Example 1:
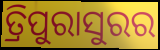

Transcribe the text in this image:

ତ୍ରିପୁରାସୁରର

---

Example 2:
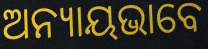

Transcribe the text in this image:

ଅନ୍ୟାୟଭାବେ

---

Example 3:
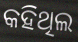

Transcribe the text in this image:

କହିଥିଲ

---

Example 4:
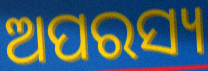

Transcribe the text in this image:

ଅପରସ୍ୟ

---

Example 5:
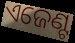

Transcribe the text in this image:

ଏଜେଣ୍ଟ